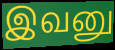
இவனு